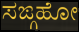
ಸಙ್ಗಹೋ